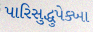
પારિસુદ્ધુપેક્ખા